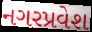
નગરપ્રવેશ